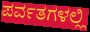
ಪರ್ವತಗಳಲ್ಲಿ